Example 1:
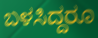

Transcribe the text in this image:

ಬಳಸಿದ್ದರೂ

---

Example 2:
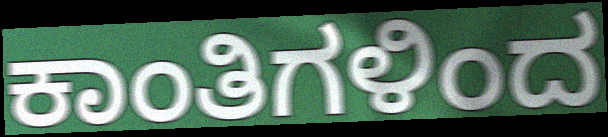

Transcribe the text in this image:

ಕಾಂತಿಗಳಿಂದ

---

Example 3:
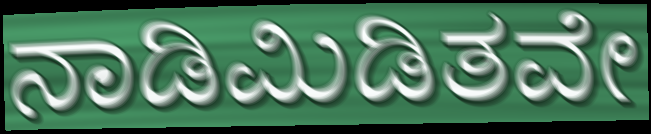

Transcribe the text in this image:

ನಾಡಿಮಿಡಿತವೇ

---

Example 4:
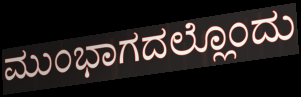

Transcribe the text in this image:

ಮುಂಭಾಗದಲ್ಲೊಂದು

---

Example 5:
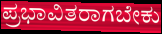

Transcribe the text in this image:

ಪ್ರಭಾವಿತರಾಗಬೇಕು